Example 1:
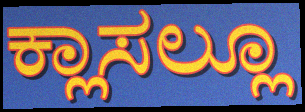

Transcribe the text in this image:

ಕ್ಲಾಸಲ್ಲೂ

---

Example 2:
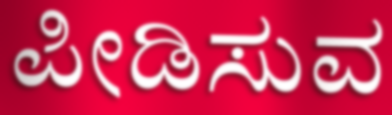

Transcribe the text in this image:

ಪೀಡಿಸುವ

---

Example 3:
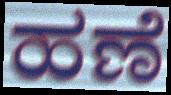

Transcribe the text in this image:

ಹಣೆ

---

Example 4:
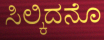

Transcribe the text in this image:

ಸಿಲ್ಕಿದನೊ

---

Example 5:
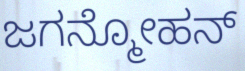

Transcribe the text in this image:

ಜಗನ್ಮೋಹನ್